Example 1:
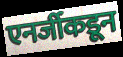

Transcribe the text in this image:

एनर्जीकडून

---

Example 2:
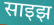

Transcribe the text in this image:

साइझ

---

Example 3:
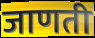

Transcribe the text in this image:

जाणती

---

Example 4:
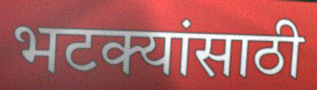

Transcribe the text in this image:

भटक्यांसाठी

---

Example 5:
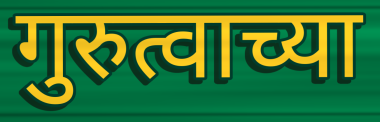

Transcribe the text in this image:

गुरुत्वाच्या